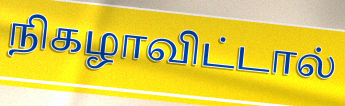
நிகழாவிட்டால்